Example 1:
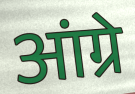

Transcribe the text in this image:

आंग्रे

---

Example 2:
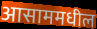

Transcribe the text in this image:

आसाममधील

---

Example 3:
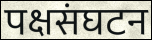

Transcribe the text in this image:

पक्षसंघटन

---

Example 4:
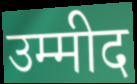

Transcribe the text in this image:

उम्मीद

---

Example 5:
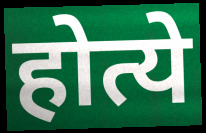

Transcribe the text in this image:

होत्ये